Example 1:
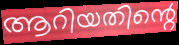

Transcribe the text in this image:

ആറിയതിന്റെ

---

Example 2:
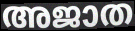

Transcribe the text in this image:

അജാത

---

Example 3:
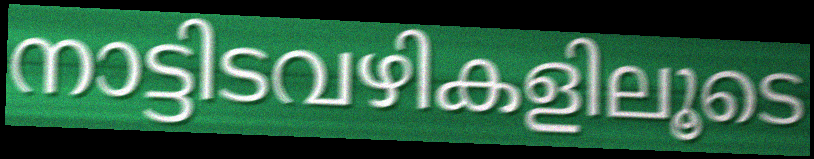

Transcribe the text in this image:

നാട്ടിടവഴികളിലൂടെ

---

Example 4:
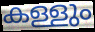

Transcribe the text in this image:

കള്ളും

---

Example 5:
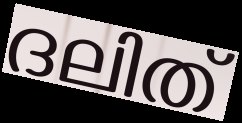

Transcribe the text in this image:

ദലിത്